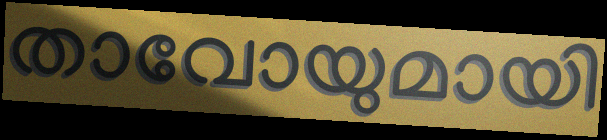
താവോയുമായി